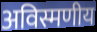
अविस्मणीय